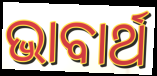
ଭାବାର୍ଥ